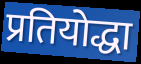
प्रतियोद्धा